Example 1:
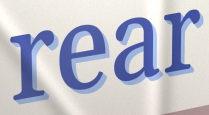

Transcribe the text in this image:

rear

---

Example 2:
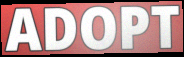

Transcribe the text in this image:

ADOPT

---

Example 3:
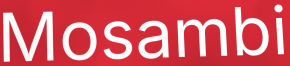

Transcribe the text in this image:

Mosambi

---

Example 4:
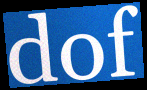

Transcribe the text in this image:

dof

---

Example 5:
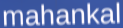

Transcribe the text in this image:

mahankal